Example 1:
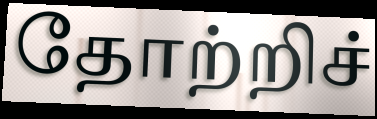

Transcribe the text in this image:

தோற்றிச்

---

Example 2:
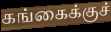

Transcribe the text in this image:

கங்கைக்குச்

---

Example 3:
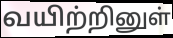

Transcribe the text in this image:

வயிற்றினுள்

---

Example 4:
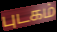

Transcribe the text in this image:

புடகம்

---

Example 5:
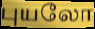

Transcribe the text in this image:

புயலோ